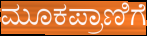
ಮೂಕಪ್ರಾಣಿಗೆ